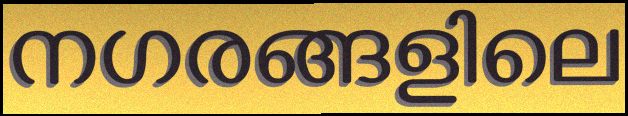
നഗരങ്ങളിലെ